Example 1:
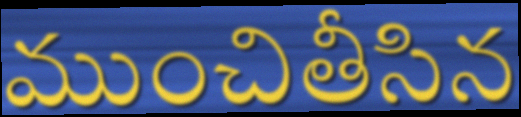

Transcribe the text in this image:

ముంచితీసిన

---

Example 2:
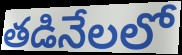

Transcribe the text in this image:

తడినేలలో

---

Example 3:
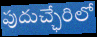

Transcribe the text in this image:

పుదుచ్ఛేరిలో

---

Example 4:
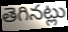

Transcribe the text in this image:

తెగినట్లు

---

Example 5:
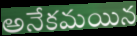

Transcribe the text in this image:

అనేకమయిన